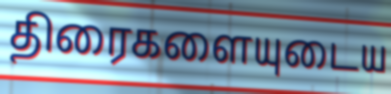
திரைகளையுடைய